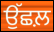
ਉੱਛਲ਼